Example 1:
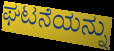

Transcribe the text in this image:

ಘಟನೆಯನ್ನು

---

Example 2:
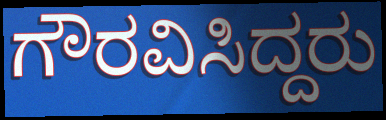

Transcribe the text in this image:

ಗೌರವಿಸಿದ್ದರು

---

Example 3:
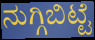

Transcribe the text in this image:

ನುಗ್ಗಿಬಿಟ್ಟೆ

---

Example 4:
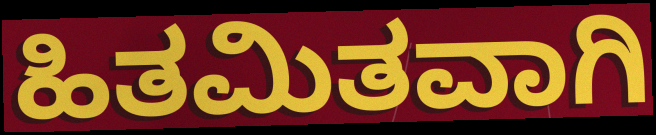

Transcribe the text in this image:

ಹಿತಮಿತವಾಗಿ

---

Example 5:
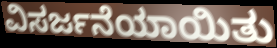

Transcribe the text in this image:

ವಿಸರ್ಜನೆಯಾಯಿತು